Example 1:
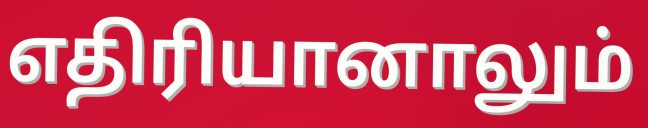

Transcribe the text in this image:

எதிரியானாலும்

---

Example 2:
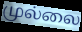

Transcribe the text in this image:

முல்லை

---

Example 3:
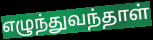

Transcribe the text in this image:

எழுந்துவந்தாள்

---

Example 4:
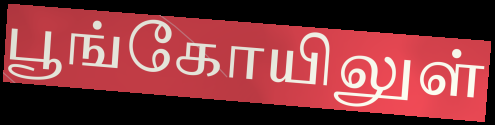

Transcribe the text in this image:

பூங்கோயிலுள்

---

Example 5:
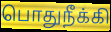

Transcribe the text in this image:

பொதுநீக்கி